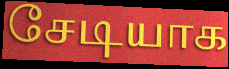
சேடியாக